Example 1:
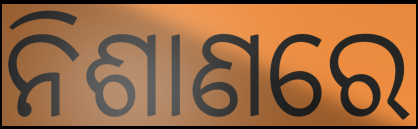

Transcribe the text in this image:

ନିଶାଣରେ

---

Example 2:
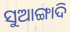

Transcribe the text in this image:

ସୁଆଙ୍ଗାଦି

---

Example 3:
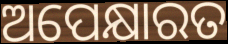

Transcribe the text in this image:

ଅପେକ୍ଷାରତ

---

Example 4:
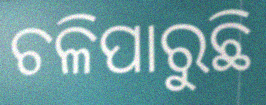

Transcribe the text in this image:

ଚଳିପାରୁଛି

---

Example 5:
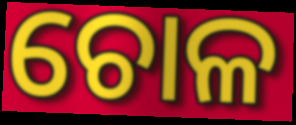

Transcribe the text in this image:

ଚୋଳ